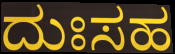
ದುಃಸಹ